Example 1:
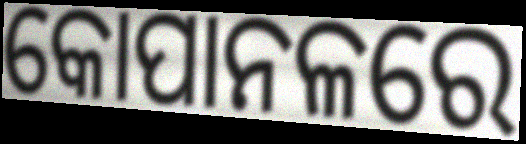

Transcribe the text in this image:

କୋପାନଳରେ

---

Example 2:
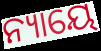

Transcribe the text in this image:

ନ୍ୟାୟେ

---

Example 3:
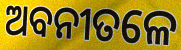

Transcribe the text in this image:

ଅବନୀତଳେ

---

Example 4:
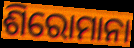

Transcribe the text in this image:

ଶିରୋମାନା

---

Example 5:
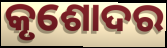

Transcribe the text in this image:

କୃଶୋଦର